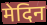
मेदिन